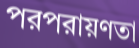
পরপরায়ণতা